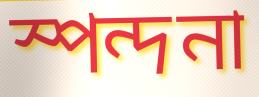
স্পন্দনা